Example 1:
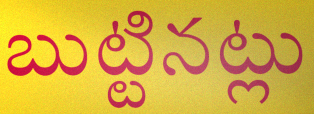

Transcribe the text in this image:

బుట్టినట్లు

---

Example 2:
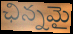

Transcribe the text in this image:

ఛిన్నమై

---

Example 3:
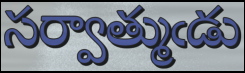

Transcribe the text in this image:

సర్వాత్ముఁడు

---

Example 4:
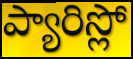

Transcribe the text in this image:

ప్యారిస్లో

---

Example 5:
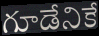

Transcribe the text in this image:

గూడేనికే